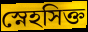
স্নেহসিক্ত